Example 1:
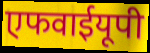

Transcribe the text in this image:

एफवाईयूपी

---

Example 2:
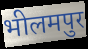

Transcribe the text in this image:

भीलमपुर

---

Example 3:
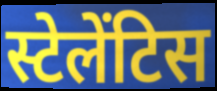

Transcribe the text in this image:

स्टेलेंटिस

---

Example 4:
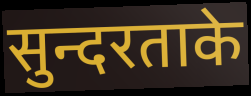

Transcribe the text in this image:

सुन्दरताके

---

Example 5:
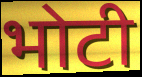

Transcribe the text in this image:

भोटी